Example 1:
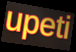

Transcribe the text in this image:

upeti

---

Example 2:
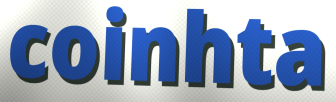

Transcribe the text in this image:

coinhta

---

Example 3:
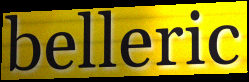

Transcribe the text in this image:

belleric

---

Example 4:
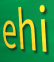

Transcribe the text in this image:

ehi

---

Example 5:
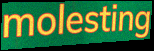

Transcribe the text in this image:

molesting